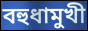
বহুধামুখী